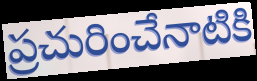
ప్రచురించేనాటికి